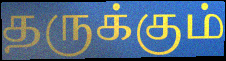
தருக்கும்